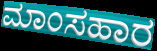
ಮಾಂಸಹಾರ